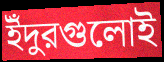
ইঁদুরগুলোই